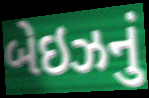
બેઇઝનું